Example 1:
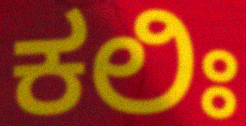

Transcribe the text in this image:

ಕಲಿಃ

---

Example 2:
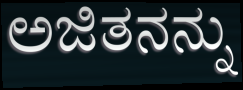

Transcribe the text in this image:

ಅಜಿತನನ್ನು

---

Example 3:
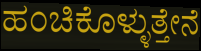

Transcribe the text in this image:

ಹಂಚಿಕೊಳ್ಳುತ್ತೇನೆ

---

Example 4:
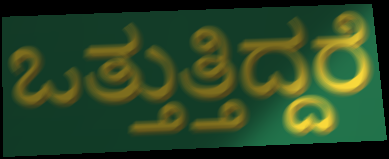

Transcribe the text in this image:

ಒತ್ತುತ್ತಿದ್ದರೆ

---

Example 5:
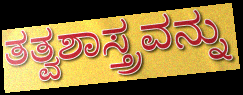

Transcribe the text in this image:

ತತ್ವಶಾಸ್ತ್ರವನ್ನು